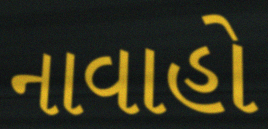
નાવાહો